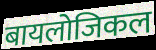
बायलोजिकल